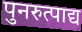
पुनरुत्पाद्य